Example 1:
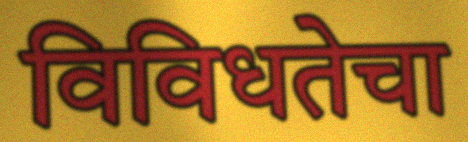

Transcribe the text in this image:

विविधतेचा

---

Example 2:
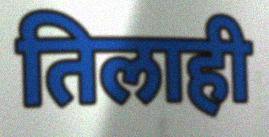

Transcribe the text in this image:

तिलाही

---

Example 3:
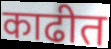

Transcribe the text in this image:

काढीत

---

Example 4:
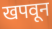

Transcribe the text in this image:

खपवून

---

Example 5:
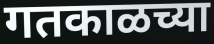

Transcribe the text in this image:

गतकाळच्या